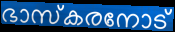
ഭാസ്കരനോട്